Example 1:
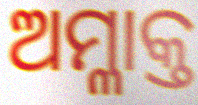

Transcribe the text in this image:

ଅମ୍ଳାକ୍ତ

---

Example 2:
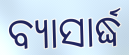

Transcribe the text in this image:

ବ୍ୟାସାର୍ଦ୍ଧ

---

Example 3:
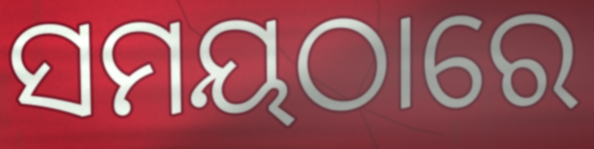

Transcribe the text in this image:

ସମୟଠାରେ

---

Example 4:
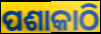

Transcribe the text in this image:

ପଶାକାଠି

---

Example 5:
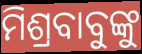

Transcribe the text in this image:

ମିଶ୍ରବାବୁଙ୍କୁ